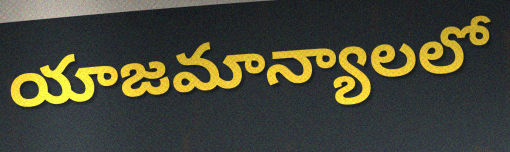
యాజమాన్యాలలో